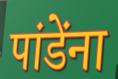
पांडेंना